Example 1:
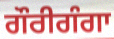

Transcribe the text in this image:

ਗੌਰੀਗੰਗਾ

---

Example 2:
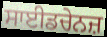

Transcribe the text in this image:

ਸਾਈਡਚੇਨਜ਼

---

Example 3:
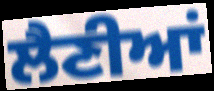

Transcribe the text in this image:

ਲੈਣੀਆਂ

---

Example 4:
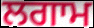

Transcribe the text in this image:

ਲਗਾਮ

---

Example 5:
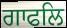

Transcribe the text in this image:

ਗਾਫਲਿ